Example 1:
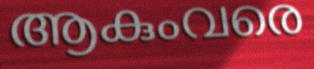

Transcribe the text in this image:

ആകുംവരെ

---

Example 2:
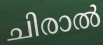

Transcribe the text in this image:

ചിരാൽ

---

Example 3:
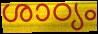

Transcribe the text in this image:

ശാഠ്യം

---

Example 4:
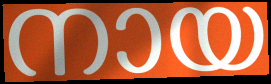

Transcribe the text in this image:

നായ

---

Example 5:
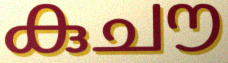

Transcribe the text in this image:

കുചൗ